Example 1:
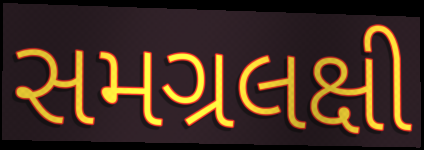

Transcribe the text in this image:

સમગ્રલક્ષી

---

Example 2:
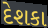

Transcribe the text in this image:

દેશકા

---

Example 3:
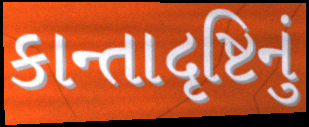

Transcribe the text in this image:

કાન્તાદૃષ્ટિનું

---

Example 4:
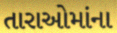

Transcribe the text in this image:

તારાઓમાંના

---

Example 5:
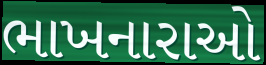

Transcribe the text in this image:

ભાખનારાઓ